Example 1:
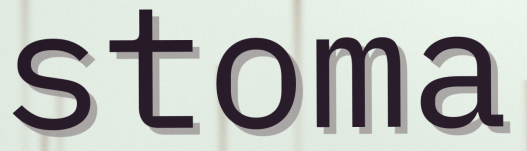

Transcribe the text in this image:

stoma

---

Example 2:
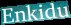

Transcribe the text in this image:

Enkidu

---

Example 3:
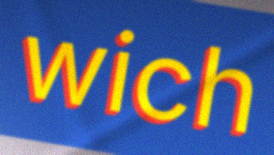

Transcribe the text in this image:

wich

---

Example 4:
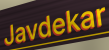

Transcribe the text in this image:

Javdekar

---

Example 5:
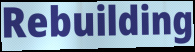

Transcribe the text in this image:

Rebuilding